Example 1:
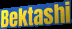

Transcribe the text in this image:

Bektashi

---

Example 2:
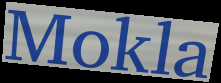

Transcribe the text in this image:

Mokla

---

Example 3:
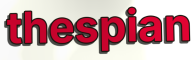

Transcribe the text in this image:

thespian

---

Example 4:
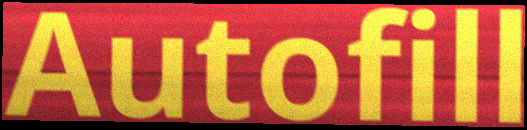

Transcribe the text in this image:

Autofill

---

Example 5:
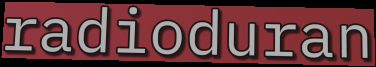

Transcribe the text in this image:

radioduran